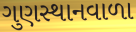
ગુણસ્થાનવાળા